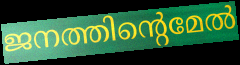
ജനത്തിന്റെമേൽ